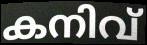
കനിവ്